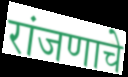
रांजणाचे